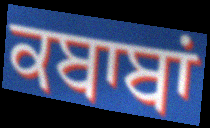
ਕਬਾਬਾਂ